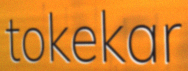
tokekar